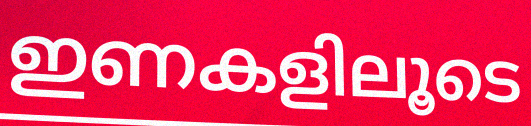
ഇണകളിലൂടെ